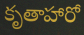
కృతాహారో